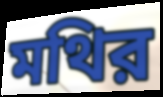
মথির